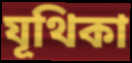
যূথিকা